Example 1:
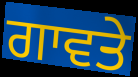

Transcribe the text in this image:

ਗਾਵਤੇ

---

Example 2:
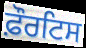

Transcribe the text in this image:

ਫ਼ੌਰਟਿਸ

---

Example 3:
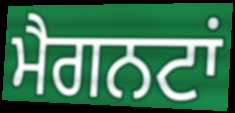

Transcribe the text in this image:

ਮੈਗਨਟਾਂ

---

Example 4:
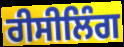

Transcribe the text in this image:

ਰੀਸੀਲਿੰਗ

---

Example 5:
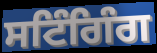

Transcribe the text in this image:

ਸਟਿੰਗਿੰਗ